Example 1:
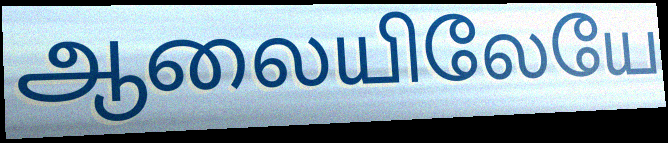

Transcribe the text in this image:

ஆலையிலேயே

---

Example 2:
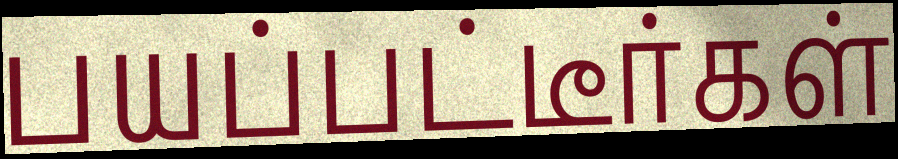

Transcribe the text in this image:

பயப்பட்டீர்கள்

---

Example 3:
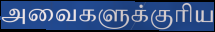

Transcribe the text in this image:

அவைகளுக்குரிய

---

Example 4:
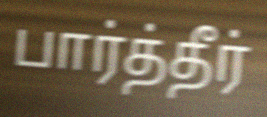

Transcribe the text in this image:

பார்த்தீர்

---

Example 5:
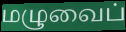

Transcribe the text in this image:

மழுவைப்